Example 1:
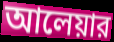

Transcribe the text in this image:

আলেয়ার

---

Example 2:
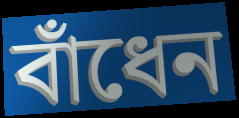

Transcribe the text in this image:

বাঁধেন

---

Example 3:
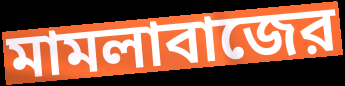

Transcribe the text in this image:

মামলাবাজের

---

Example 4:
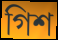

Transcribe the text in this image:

গিশ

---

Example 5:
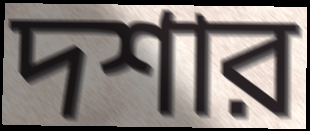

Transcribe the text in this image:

দশার